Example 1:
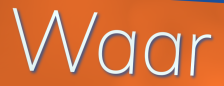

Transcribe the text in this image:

Waar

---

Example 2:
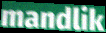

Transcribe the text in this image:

mandlik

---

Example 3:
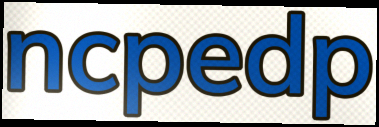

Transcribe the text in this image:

ncpedp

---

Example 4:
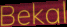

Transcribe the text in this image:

Bekal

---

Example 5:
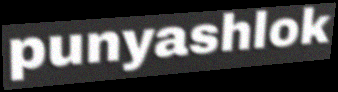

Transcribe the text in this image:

punyashlok